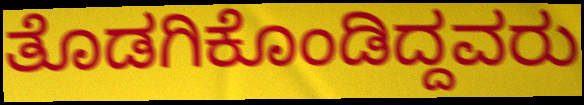
ತೊಡಗಿಕೊಂಡಿದ್ದವರು